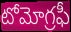
టోమోగ్రఫీ